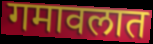
गमावलात